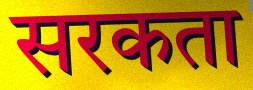
सरकता